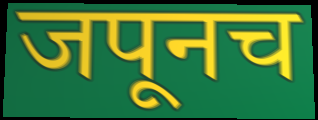
जपूनच